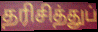
தரிசித்துப்